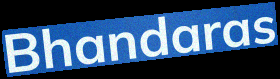
Bhandaras